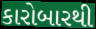
કારોબારથી